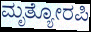
ಮೃತ್ಯೋರಪಿ